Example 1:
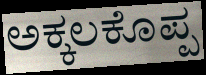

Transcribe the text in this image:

ಅಕ್ಕಲಕೊಪ್ಪ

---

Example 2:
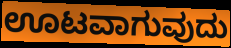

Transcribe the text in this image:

ಊಟವಾಗುವುದು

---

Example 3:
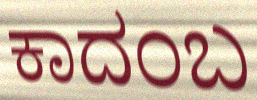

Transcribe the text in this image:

ಕಾದಂಬ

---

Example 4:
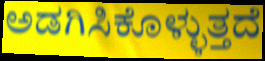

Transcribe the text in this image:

ಅಡಗಿಸಿಕೊಳ್ಳುತ್ತದೆ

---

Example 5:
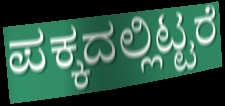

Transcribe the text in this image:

ಪಕ್ಕದಲ್ಲಿಟ್ಟರೆ